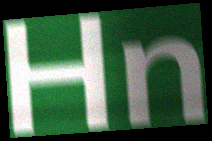
Hn